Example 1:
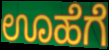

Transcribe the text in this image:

ಊಹೆಗೆ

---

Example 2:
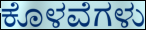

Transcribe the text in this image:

ಕೊಳವೆಗಳು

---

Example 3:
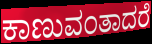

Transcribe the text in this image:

ಕಾಣುವಂತಾದರೆ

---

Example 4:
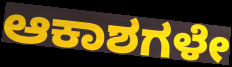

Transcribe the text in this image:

ಆಕಾಶಗಳೇ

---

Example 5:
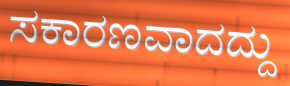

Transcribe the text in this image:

ಸಕಾರಣವಾದದ್ದು